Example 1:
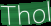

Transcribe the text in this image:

Thol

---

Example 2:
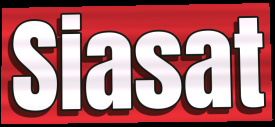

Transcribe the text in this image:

Siasat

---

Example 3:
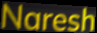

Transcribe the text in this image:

Naresh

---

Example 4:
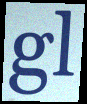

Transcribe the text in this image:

gl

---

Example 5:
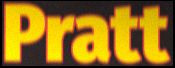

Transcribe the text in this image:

Pratt